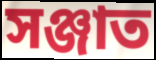
সঞ্জাত